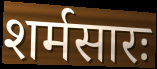
शर्मसारः